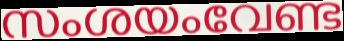
സംശയംവേണ്ട